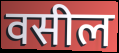
वसील